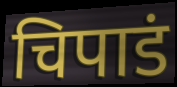
चिपाडं